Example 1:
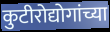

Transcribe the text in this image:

कुटीरोद्योगांच्या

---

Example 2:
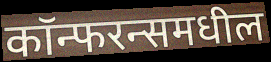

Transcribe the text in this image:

कॉन्फरन्समधील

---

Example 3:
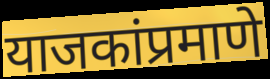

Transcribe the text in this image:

याजकांप्रमाणे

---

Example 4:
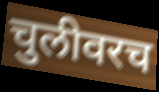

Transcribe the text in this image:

चुलीवरच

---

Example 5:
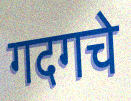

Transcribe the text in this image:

गदगचे